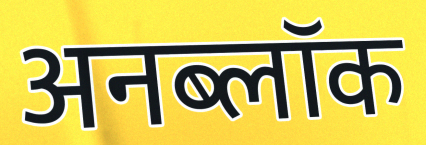
अनब्लॉक